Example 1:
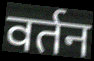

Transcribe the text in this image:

वर्तन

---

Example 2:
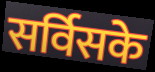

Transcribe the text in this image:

सर्विसके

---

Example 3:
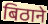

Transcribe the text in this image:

बिठाने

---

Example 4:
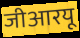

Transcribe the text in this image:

जीआरयू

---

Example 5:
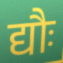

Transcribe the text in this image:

द्यौः